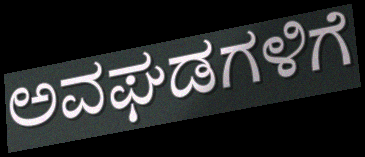
ಅವಘಡಗಳಿಗೆ